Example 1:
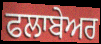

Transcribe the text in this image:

ਫਲਾਬੇਅਰ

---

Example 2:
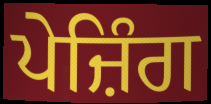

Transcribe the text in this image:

ਪੇਜ਼ਿੰਗ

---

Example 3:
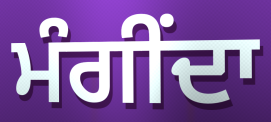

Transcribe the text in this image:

ਮੰਗੀਂਦਾ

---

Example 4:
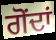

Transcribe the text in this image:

ਗੋਂਦਾਂ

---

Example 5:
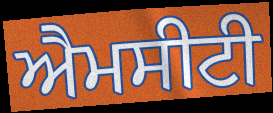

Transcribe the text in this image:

ਐਮਸੀਟੀ